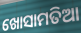
ଖୋସାମତିଆ